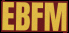
EBFM